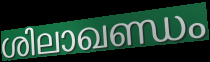
ശിലാഖണ്ഡം